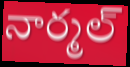
నార్మల్